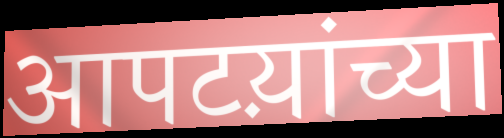
आपटय़ांच्या